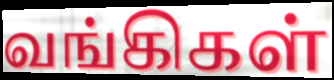
வங்கிகள்